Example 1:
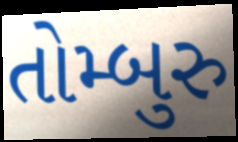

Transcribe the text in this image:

તોમ્બુરુ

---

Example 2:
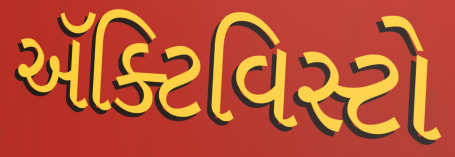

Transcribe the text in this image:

ઍક્ટિવિસ્ટો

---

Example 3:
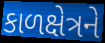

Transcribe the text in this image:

કાળક્ષેત્રને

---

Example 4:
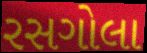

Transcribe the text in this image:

રસગોલા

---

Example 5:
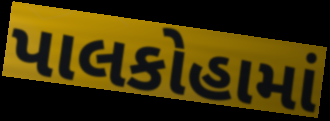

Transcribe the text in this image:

પાલકોહામાં